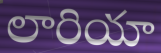
లారియా